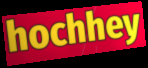
hochhey